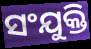
ସଂଯୁକ୍ତି